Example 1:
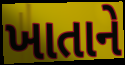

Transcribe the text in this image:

ખાતાને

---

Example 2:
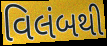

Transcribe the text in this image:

વિલંબથી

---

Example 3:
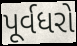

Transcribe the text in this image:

પૂર્વધરો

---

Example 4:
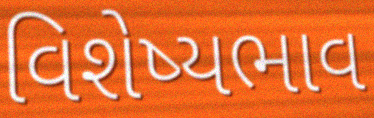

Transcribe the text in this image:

વિશેષ્યભાવ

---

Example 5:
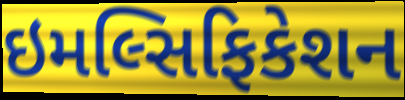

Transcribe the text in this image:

ઇમલ્સિફિકેશન